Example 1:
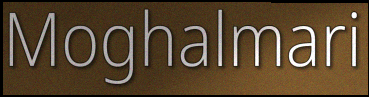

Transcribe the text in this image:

Moghalmari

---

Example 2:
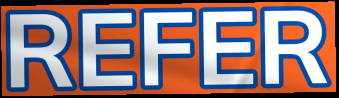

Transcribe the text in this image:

REFER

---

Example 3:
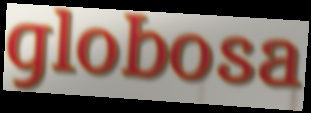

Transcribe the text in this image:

globosa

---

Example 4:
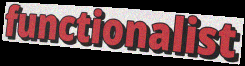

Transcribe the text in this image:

functionalist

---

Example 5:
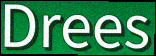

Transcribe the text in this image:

Drees